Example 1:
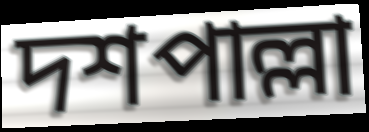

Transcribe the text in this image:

দশপাল্লা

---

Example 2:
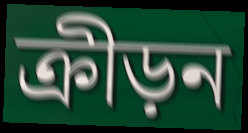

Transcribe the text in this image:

ক্রীড়ন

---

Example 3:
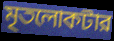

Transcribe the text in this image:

মৃতলোকটার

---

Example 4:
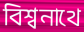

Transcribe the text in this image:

বিশ্বনাথে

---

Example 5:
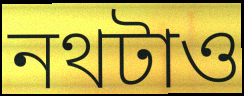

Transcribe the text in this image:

নথটাও